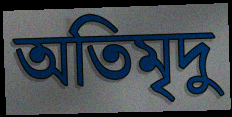
অতিমৃদু